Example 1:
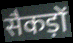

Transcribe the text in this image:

सैकड़ों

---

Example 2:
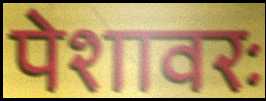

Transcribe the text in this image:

पेशावरः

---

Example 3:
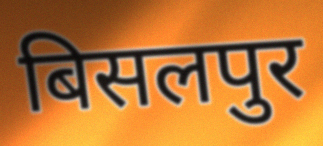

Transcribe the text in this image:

बिसलपुर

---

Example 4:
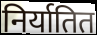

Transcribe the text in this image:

निर्यातित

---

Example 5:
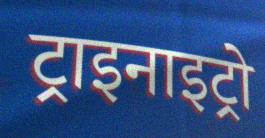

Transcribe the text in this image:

ट्राइनाइट्रो